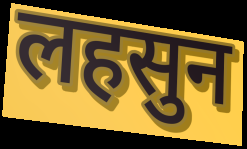
लहसुन